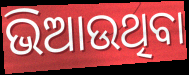
ଭିଆଉଥିବା